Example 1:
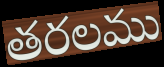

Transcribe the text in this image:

తరలము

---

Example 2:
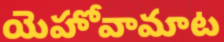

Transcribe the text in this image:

యెహోవామాట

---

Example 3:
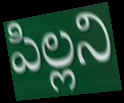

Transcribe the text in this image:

పిల్లని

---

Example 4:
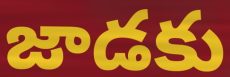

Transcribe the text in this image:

జాడకు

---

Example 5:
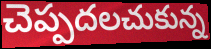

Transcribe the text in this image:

చెప్పదలచుకున్న